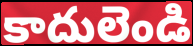
కాదులెండి